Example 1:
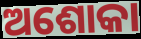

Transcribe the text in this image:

ଅଶୋକା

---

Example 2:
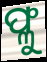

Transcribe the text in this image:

ଫ୍ଳୁ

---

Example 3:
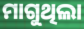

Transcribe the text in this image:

ମାଗୁଥିଲା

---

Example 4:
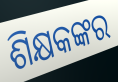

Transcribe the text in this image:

ଶିକ୍ଷକଙ୍କର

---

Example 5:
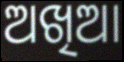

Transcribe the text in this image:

ଅଖିଆ